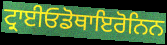
ਟ੍ਰਾਈਓਡੋਥਾਇਰੋਨਿਨ